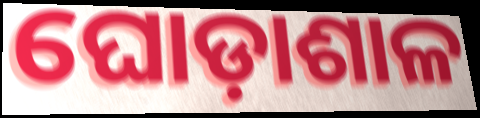
ଘୋଡ଼ାଶାଳ